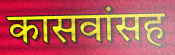
कासवांसह